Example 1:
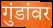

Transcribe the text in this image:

गुंडांवर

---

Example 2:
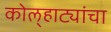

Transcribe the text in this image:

कोल्हाट्यांचा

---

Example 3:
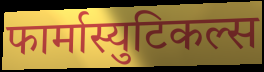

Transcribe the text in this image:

फार्मास्युटिकल्स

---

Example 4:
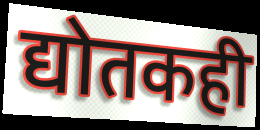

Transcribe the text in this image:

द्योतकही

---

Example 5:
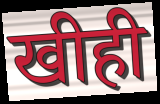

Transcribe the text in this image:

खीही